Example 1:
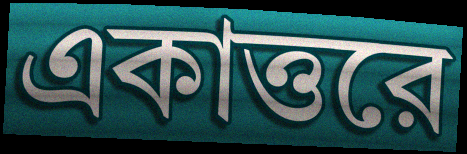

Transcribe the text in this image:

একাত্তরে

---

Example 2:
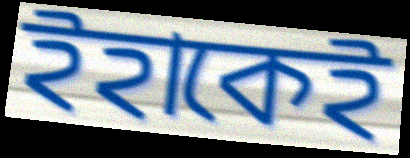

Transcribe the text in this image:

ইহাকেই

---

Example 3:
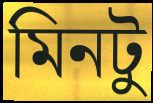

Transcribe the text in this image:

মিনটু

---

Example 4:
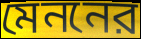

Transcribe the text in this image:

মেননের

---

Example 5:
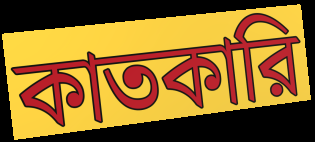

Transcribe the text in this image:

কাতকারি